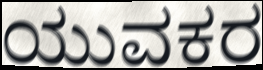
ಯುವಕರ